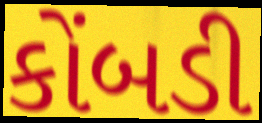
કોંબડી